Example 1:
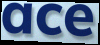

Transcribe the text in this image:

ace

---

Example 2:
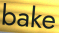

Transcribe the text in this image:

bake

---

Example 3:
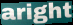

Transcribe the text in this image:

aright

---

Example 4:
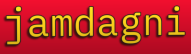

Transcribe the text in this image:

jamdagni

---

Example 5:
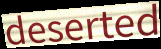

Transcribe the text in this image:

deserted